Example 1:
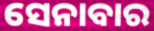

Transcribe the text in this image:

ସେନାବାର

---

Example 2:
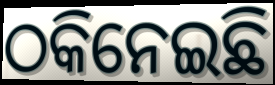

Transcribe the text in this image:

ଠକିନେଇଛି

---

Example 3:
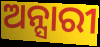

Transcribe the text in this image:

ଅନ୍ସାରୀ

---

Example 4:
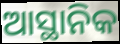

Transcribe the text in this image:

ଆସ୍ଥାନିକ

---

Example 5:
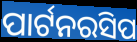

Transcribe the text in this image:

ପାର୍ଟନରସିପ